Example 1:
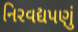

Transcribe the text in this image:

નિરવદ્યપણું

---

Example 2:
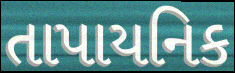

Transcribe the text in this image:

તાપાયનિક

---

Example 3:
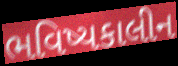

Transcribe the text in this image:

ભવિષ્યકાલીન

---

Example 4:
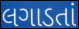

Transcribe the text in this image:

લગાડતાં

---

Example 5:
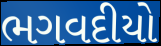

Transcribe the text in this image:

ભગવદીયો